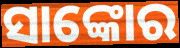
ସାଙ୍କୋର